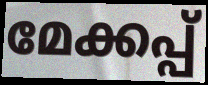
മേക്കപ്പ്